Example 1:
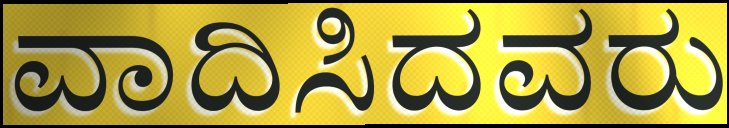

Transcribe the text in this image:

ವಾದಿಸಿದವರು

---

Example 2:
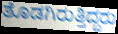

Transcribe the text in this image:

ತೊಡಗಿರುತ್ತಿದ್ದರು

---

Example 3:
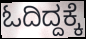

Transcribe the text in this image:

ಓದಿದ್ದಕ್ಕೆ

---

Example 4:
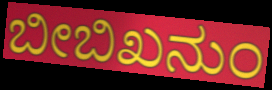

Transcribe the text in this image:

ಬೀಬಿಖನುಂ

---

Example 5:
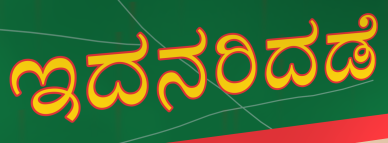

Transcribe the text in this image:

ಇದನರಿದಡೆ